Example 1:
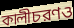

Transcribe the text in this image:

কালীচরণও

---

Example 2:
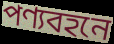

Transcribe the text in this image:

পণ্যবহনে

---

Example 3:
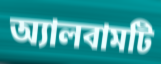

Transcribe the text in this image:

অ্যালবামটি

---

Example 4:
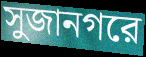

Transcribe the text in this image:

সুজানগরে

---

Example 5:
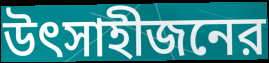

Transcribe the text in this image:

উৎসাহীজনের